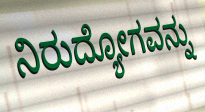
ನಿರುದ್ಯೋಗವನ್ನು